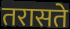
तरासते